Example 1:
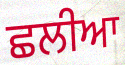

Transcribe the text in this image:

ਛਲੀਆ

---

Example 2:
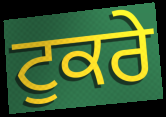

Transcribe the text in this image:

ਟੁਕਰੇ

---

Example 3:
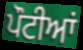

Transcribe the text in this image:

ਪੌਟੀਆਂ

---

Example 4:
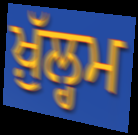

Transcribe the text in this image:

ਖ਼ੁੱਲ੍ਹਮ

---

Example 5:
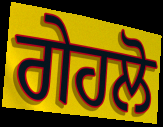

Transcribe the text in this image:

ਗੇਹਲੋ